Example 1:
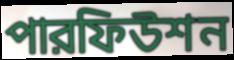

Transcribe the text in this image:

পারফিউশন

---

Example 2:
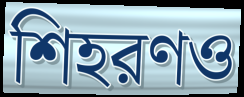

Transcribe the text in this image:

শিহরণও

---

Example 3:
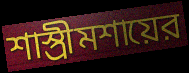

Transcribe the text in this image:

শাস্ত্রীমশায়ের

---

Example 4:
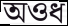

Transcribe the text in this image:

অওধ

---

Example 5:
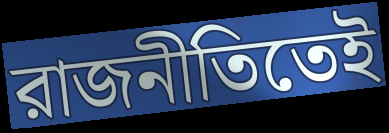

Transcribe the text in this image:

রাজনীতিতেই